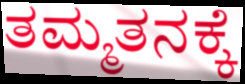
ತಮ್ಮತನಕ್ಕೆ